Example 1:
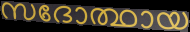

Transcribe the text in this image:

സദോത്ഥായ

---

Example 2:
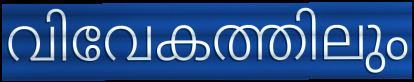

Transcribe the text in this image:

വിവേകത്തിലും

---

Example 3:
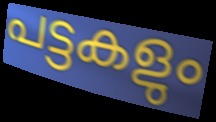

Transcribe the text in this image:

പട്ടകളും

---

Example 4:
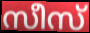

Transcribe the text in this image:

സീസ്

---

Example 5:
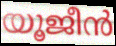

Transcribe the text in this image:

യൂജീൻ